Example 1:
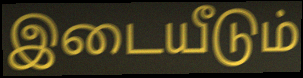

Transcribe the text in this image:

இடையீடும்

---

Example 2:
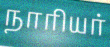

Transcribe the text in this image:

நாரியர்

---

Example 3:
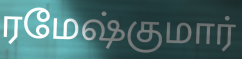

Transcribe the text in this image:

ரமேஷ்குமார்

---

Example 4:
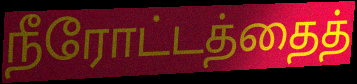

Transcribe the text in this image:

நீரோட்டத்தைத்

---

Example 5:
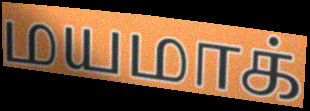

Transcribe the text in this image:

மயமாக்